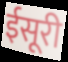
ईसूरी